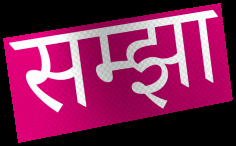
सम्झा